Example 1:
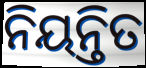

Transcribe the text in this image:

ନିୟନ୍ତିତ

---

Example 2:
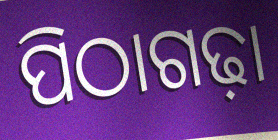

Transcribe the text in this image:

ପିଠାଗଢ଼ା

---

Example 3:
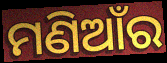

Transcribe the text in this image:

ମଣିଆଁର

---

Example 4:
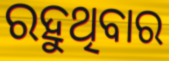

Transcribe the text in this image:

ରହୁଥିବାର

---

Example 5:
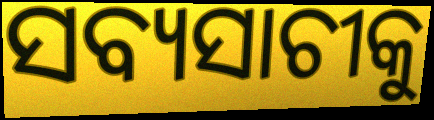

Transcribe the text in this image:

ସବ୍ୟସାଚୀକୁ